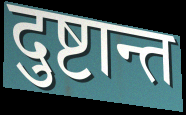
दुष्टान्त